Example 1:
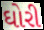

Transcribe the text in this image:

ઘોરી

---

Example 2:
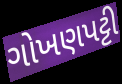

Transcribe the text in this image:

ગોખણપટ્ટી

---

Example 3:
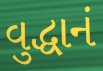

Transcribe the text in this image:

વુદ્ધાનં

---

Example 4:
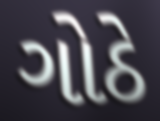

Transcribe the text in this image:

ગોઠે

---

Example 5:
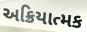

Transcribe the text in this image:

અક્રિયાત્મક